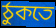
ঠুকতে